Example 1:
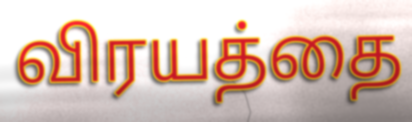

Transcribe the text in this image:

விரயத்தை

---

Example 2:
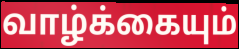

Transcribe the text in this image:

வாழ்க்கையும்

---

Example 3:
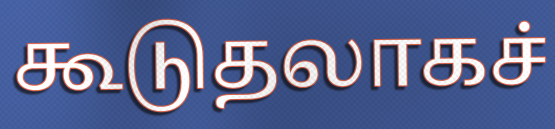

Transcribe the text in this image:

கூடுதலாகச்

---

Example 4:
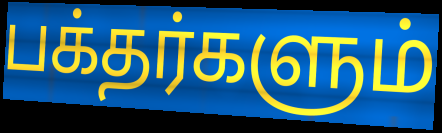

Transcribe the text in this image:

பக்தர்களும்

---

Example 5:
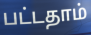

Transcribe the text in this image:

பட்டதாம்